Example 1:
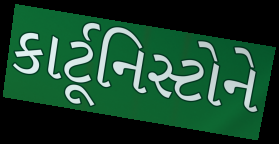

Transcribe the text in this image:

કાર્ટૂનિસ્ટોને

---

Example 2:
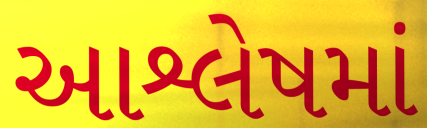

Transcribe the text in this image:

આશ્લેષમાં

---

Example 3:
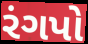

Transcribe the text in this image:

રંગપો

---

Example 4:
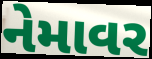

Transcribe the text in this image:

નેમાવર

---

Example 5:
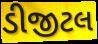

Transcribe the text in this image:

ડીજીટલ